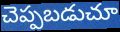
చెప్పబడుచూ